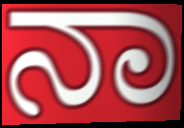
ನಾ